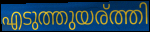
എടുത്തുയര്ത്തി